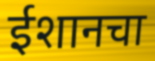
ईशानचा